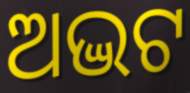
ଅଦ୍ଭଟ